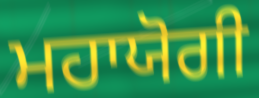
ਮਹਾਯੋਗੀ